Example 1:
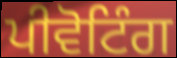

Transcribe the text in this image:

ਪੀਵੋਟਿੰਗ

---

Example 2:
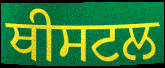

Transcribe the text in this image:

ਥੀਸਟਲ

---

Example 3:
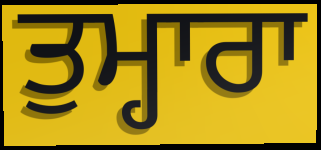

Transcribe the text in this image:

ਤੁਮ੍ਹਾਰਾ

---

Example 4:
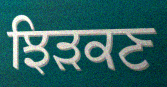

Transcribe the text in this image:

ਝਿੜਕਣ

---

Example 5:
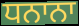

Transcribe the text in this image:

ਧਨਾਨਾ